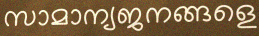
സാമാന്യജനങ്ങളെ